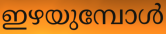
ഇഴയുമ്പോൾ